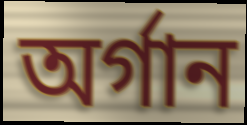
অর্গান